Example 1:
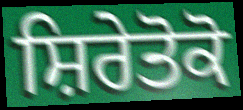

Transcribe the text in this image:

ਸ਼ਿਰੇਤੋਕੋ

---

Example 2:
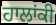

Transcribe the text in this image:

ਹਾਲਾਂਕੀ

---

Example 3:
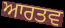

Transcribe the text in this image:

ਆਰਤਵ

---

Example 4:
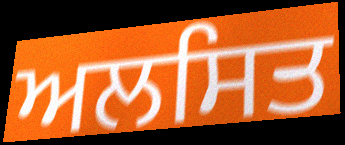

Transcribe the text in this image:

ਅਲਸਿਤ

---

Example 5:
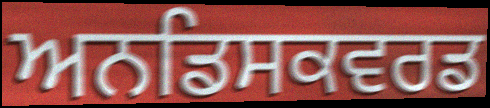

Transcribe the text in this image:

ਅਨਡਿਸਕਵਰਡ